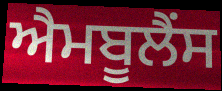
ਐਮਬੂਲੈਂਸ